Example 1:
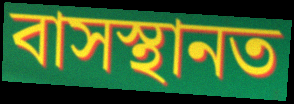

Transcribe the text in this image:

বাসস্থানত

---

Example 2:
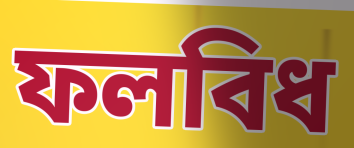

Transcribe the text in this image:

ফলবিধ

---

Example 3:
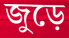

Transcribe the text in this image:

জুড়ে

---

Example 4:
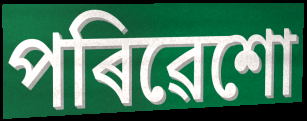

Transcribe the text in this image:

পৰিৱেশো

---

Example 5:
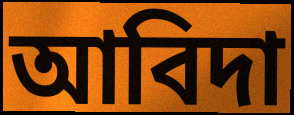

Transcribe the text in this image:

আবিদা